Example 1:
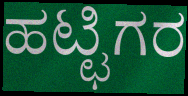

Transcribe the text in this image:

ಹಟ್ಟಿಗರ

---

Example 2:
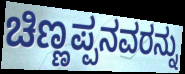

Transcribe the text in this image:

ಚಿಣ್ಣಪ್ಪನವರನ್ನು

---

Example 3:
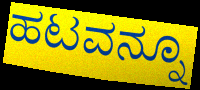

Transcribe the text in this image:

ಹಟವನ್ನೂ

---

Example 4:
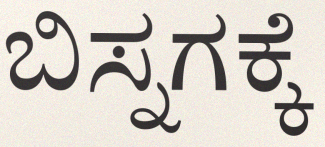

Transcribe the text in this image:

ಬಿಸ್ನಗಕ್ಕೆ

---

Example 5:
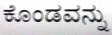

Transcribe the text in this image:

ಕೊಂಡವನ್ನು